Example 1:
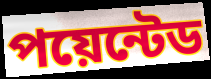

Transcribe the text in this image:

পয়েন্টেড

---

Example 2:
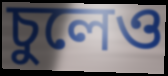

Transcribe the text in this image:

চুলেও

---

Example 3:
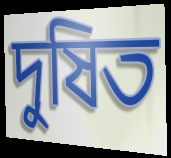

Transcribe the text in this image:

দুষিত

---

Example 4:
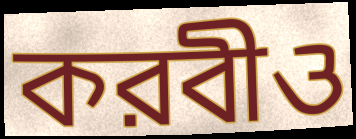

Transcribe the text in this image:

করবীও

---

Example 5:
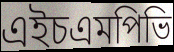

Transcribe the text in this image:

এইচএমপিভি